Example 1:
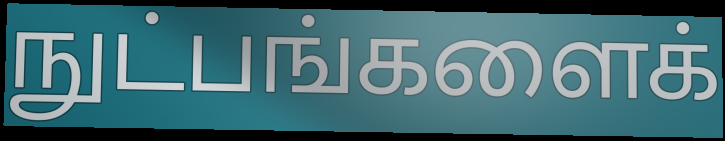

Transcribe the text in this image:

நுட்பங்களைக்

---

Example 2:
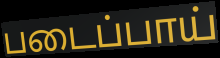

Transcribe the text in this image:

படைப்பாய்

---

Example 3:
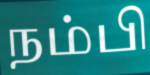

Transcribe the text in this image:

நம்பி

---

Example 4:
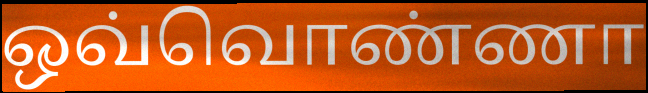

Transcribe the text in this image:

ஒவ்வொண்ணா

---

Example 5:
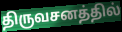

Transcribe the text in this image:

திருவசனத்தில்